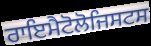
ਰਾਇਮੈਟੋਲੋਜਿਸਟਸ